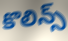
కొలిన్స్